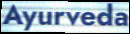
Ayurveda